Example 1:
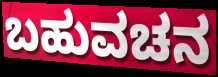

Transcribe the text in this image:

ಬಹುವಚನ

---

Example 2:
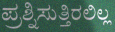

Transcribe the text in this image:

ಪ್ರಶ್ನಿಸುತ್ತಿರಲಿಲ್ಲ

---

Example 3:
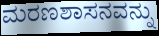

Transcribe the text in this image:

ಮರಣಶಾಸನವನ್ನು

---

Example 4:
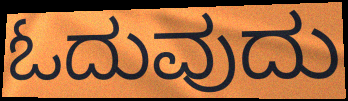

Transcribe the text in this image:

ಓದುವುದು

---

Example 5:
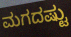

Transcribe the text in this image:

ಮಗದಷ್ಟು